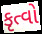
કૃત્વો